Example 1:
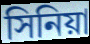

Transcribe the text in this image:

সিনিয়া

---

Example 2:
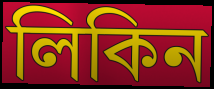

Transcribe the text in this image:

লিকিন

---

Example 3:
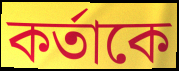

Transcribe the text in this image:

কর্তাকে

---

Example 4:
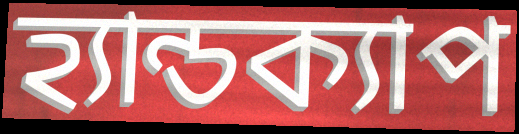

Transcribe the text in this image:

হ্যান্ডক্যাপ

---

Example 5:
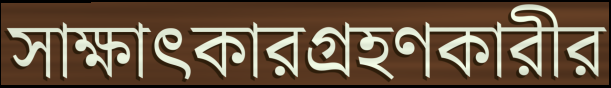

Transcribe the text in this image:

সাক্ষাৎকারগ্রহণকারীর